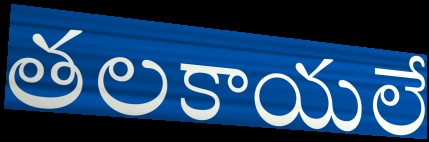
తలకాయలే